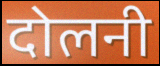
दोलनी